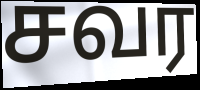
சவர